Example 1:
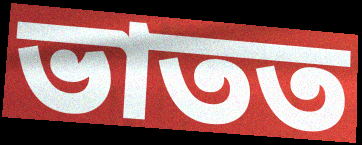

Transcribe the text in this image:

ভাতত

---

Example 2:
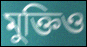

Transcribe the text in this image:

মুক্তিও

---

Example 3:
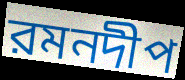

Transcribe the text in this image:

রমনদীপ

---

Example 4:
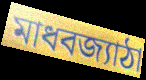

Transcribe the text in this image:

মাধবজ্যাঠা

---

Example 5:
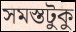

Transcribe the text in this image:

সমস্তটুকু